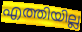
എത്തിയില്ല